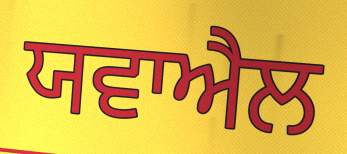
ਯਵਾਐਲ